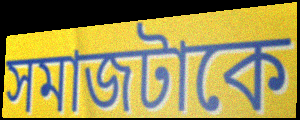
সমাজটাকে